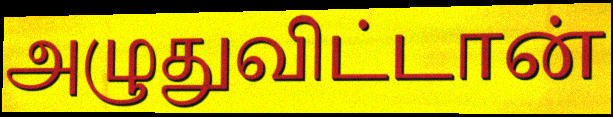
அழுதுவிட்டான்